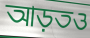
আড়তও